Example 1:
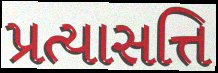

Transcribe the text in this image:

પ્રત્યાસત્તિ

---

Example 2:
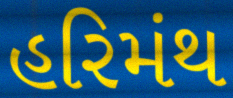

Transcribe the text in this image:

હરિમંથ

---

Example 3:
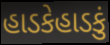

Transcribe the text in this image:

હાડકેહાડકું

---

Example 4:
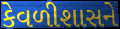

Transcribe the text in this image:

કેવળીશાસને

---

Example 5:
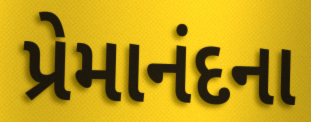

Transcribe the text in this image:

પ્રેમાનંદના